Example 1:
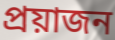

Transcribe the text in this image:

প্রয়াজন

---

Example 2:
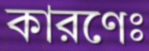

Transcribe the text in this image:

কারণেঃ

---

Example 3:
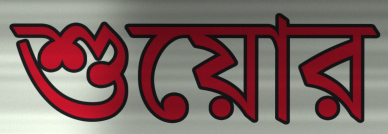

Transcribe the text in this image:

শুয়োর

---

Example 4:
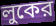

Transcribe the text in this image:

লুকের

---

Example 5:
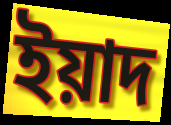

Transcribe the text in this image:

ইয়াদ